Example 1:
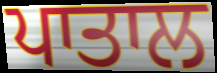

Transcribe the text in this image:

ਪਾਤਾਲ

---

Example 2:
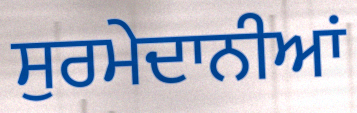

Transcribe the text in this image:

ਸੁਰਮੇਦਾਨੀਆਂ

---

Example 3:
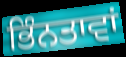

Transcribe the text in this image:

ਭਿੰਨਤਾਵਾਂ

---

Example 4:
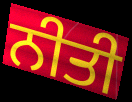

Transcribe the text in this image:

ਨੀਤੀ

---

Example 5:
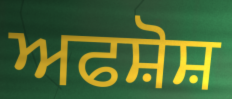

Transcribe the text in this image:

ਅਫਸ਼ੋਸ਼